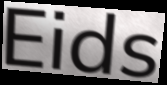
Eids